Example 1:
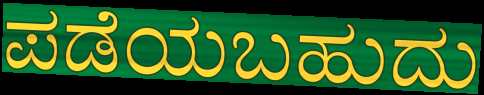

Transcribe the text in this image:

ಪಡೆಯಬಹುದು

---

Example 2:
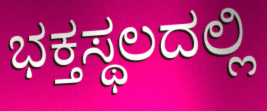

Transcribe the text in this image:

ಭಕ್ತಸ್ಥಲದಲ್ಲಿ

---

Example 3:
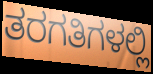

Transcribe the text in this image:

ತರಗತಿಗಳಲ್ಲಿ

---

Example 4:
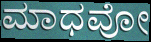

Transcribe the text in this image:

ಮಾಧವೋ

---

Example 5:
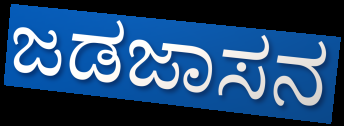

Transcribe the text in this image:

ಜಡಜಾಸನ